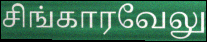
சிங்காரவேலு